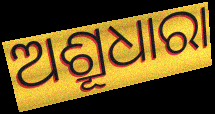
ଅଶ୍ରୂଧାରା